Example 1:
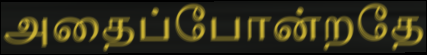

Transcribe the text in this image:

அதைப்போன்றதே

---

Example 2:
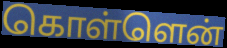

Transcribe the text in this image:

கொள்ளென்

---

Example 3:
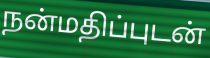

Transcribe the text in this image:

நன்மதிப்புடன்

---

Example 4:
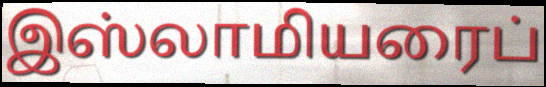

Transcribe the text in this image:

இஸ்லாமியரைப்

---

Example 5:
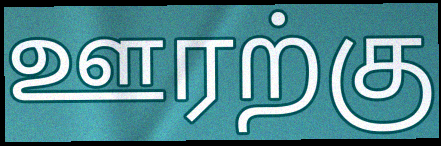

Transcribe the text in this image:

ஊரற்கு